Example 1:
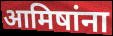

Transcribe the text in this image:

आमिषांना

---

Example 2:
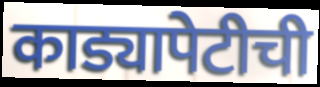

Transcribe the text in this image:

काड्यापेटीची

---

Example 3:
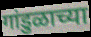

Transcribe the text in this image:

गांडुळाच्या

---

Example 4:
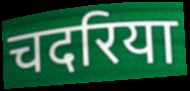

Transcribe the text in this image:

चदरिया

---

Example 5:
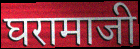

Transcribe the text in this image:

घरामाजी